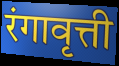
रंगावृत्ती